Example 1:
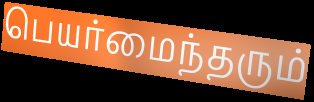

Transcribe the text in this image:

பெயர்மைந்தரும்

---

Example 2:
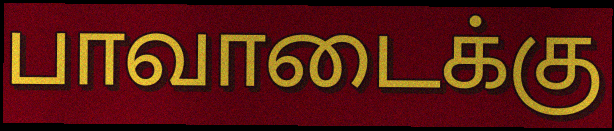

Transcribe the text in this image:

பாவாடைக்கு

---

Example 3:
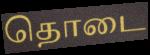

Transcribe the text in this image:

தொடை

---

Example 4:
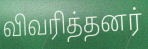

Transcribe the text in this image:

விவரித்தனர்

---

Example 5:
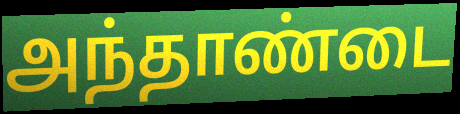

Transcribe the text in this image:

அந்தாண்டை